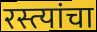
रस्त्यांचा